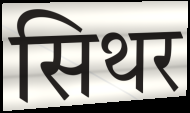
सिथर